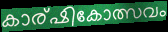
കാര്ഷികോത്സവം